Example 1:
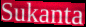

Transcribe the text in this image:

Sukanta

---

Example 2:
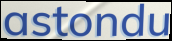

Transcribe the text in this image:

astondu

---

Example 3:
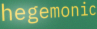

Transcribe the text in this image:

hegemonic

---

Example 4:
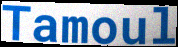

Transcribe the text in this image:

Tamoul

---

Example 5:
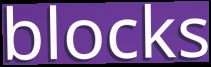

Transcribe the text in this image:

blocks